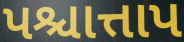
પશ્ચાત્તાપ